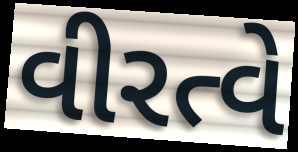
વીરત્વે